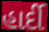
હાર્દી